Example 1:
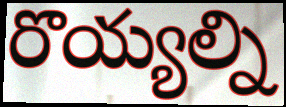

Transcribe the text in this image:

రొయ్యల్ని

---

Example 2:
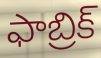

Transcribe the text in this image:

ఫాబ్రిక్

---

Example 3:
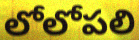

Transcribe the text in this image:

లోలోపలి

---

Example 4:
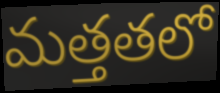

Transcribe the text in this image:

మత్తతలో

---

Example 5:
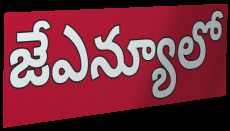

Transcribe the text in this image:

జేఎన్యూలో